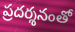
ప్రదర్శనంతో